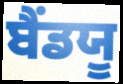
ਬੈਂਡਯੂ